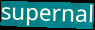
supernal